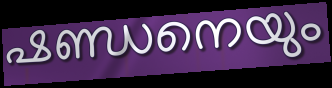
ഷണ്ഡനെയും